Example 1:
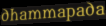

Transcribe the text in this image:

dhammapada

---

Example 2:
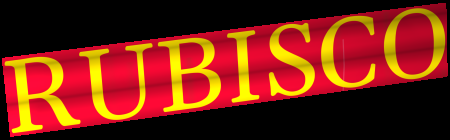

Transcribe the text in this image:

RUBISCO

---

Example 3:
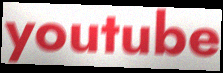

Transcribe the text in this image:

youtube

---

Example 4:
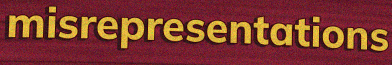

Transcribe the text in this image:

misrepresentations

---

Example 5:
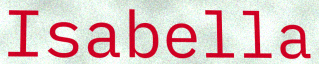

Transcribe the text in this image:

Isabella